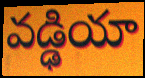
వడ్ఢియా